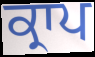
ਕ੍ਰਾਪ